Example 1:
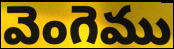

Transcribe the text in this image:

వెంగెము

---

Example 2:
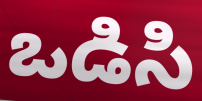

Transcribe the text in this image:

ఒడిసి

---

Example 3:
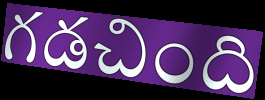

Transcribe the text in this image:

గడచింది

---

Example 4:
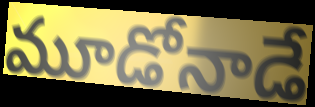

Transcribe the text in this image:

మూడోనాడే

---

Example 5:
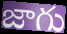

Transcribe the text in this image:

జాగు